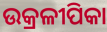
ଉକ୍ରଳୀପିକା